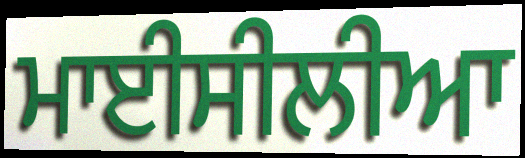
ਮਾਈਸੀਲੀਆ